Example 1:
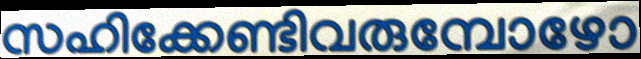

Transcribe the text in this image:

സഹിക്കേണ്ടിവരുമ്പോഴോ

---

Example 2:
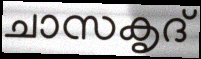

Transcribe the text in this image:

ചാസകൃദ്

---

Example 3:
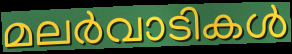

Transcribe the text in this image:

മലർവാടികൾ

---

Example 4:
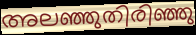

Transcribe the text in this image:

അലഞ്ഞുതിരിഞ്ഞു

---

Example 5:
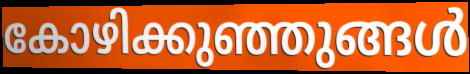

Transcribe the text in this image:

കോഴിക്കുഞ്ഞുങ്ങൾ